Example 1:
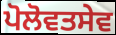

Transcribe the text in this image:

ਪੋਲੋਵਤਸੇਵ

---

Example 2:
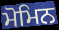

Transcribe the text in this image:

ਮੋਮਿਨ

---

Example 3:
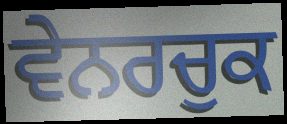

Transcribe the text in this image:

ਵੇਨਰਚੁਕ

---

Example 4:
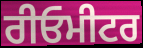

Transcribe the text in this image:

ਰੀਓਮੀਟਰ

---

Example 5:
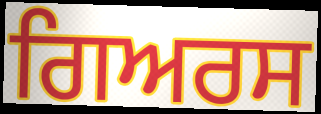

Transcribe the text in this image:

ਗਿਅਰਸ